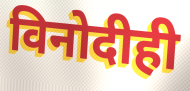
विनोदीही